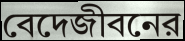
বেদেজীবনের